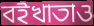
বইখাতাও